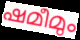
ഷമീമും